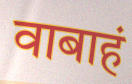
वाबाहं